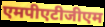
एमपीएटीजीएम